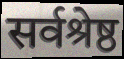
सर्वश्रेष्ठ